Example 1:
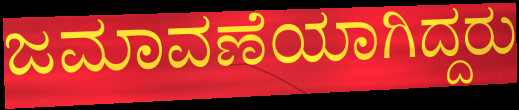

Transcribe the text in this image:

ಜಮಾವಣೆಯಾಗಿದ್ದರು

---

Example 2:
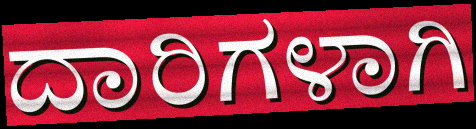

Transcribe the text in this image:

ದಾರಿಗಳಾಗಿ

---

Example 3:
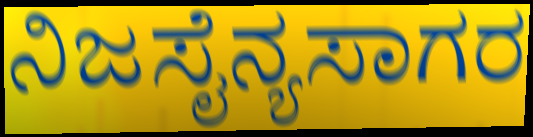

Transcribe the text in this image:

ನಿಜಸೈನ್ಯಸಾಗರ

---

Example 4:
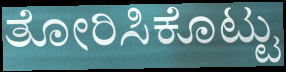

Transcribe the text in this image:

ತೋರಿಸಿಕೊಟ್ಟು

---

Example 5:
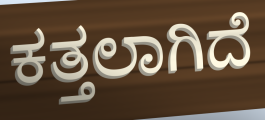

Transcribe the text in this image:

ಕತ್ತಲಾಗಿದೆ